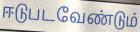
ஈடுபடவேண்டும்